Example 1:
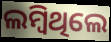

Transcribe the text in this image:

ଲମ୍ବିଥିଲେ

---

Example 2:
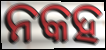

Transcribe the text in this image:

ନକହ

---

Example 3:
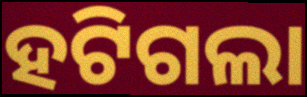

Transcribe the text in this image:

ହଟିଗଲା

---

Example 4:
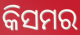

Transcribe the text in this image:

କିସମର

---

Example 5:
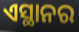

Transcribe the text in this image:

ଏସ୍ଥାନର